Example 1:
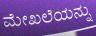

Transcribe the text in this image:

ಮೇಖಲೆಯನ್ನು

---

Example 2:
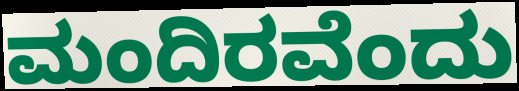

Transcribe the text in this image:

ಮಂದಿರವೆಂದು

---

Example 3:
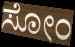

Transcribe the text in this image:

ಸೋಂ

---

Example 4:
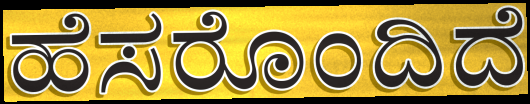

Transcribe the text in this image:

ಹೆಸರೊಂದಿದೆ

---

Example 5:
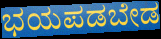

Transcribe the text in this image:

ಭಯಪಡಬೇಡ